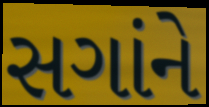
સગાંને